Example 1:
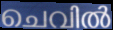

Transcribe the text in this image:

ചെവിൽ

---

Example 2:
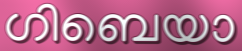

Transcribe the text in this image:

ഗിബെയാ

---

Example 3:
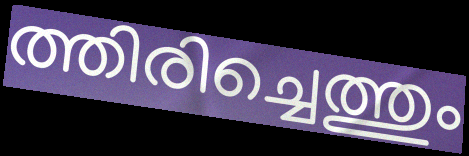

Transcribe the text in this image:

ത്തിരിച്ചെത്തും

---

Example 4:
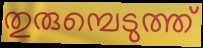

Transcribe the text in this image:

തുരുമ്പെടുത്ത്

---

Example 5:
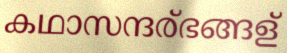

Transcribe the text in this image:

കഥാസന്ദര്ഭങ്ങള്